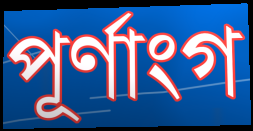
পূৰ্ণাংগ